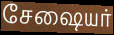
சேஷையர்